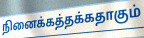
நினைக்கத்தக்கதாகும்